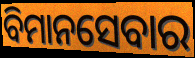
ବିମାନସେବାର